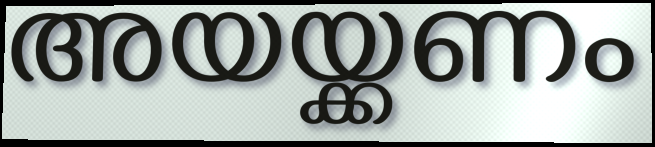
അയയ്ക്കണം